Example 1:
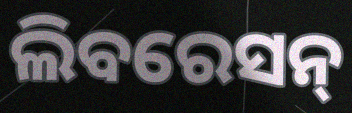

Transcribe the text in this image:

ଲିବରେସନ୍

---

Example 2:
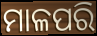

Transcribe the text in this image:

ମାଳପରି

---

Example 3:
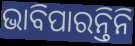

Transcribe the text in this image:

ଭାବିପାରନ୍ତିନି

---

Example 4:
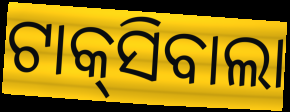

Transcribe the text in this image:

ଟାକ୍‌ସିବାଲା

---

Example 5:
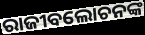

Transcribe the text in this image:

ରାଜୀବଲୋଚନଙ୍କ